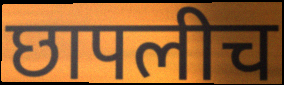
छापलीच